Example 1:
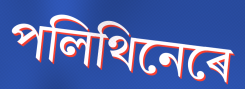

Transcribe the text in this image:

পলিথিনেৰে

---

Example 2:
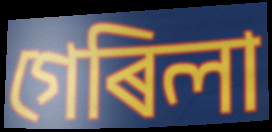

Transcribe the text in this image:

গেৰিলা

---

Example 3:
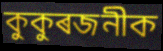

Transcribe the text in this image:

কুকুৰজনীক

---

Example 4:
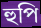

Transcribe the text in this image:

হুপি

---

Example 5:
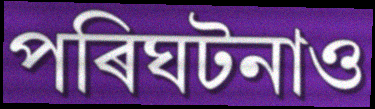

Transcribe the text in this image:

পৰিঘটনাও